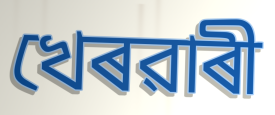
খেৰৱাৰী